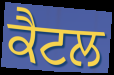
ਕੈਟਲ